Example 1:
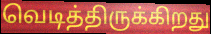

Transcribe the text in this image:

வெடித்திருக்கிறது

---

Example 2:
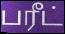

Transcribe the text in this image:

பரீட்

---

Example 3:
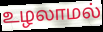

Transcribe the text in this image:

உழலாமல்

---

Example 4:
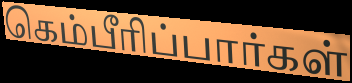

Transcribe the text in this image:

கெம்பீரிப்பார்கள்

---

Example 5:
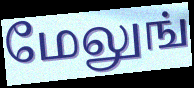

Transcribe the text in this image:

மேலுங்